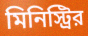
মিনিস্ট্রির